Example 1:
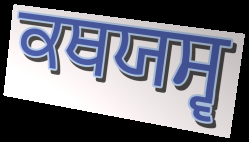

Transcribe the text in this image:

ਕਥਯਸ੍ਵ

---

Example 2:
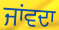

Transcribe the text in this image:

ਜਾਂਵਦਾ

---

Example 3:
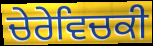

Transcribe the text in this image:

ਚੇਰੇਵਿਚਕੀ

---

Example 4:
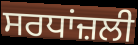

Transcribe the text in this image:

ਸਰਧਾਂਜ਼ਲੀ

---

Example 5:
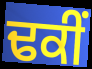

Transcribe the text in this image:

ਢਕੀਂ